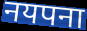
नयपना